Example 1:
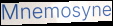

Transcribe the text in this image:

Mnemosyne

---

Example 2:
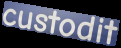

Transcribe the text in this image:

custodit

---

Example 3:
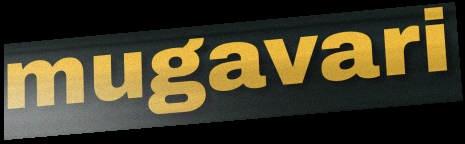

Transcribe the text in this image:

mugavari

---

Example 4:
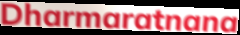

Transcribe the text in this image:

Dharmaratnana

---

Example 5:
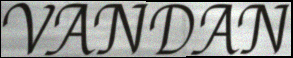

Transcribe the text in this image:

VANDAN